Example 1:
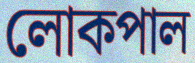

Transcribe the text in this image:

লোকপাল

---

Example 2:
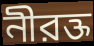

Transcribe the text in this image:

নীরক্ত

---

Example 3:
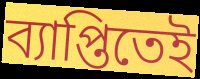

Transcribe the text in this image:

ব্যাপ্তিতেই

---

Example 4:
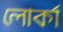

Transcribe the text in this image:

লোর্কা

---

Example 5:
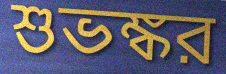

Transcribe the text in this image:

শুভঙ্কর